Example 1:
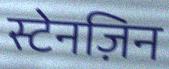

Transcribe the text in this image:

स्टेनज़िन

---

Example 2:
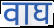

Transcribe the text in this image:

वाघ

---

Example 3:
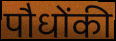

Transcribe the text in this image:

पौधोंकी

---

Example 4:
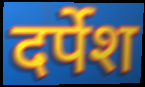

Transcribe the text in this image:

दर्पेश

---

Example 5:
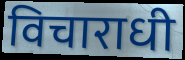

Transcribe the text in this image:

विचाराधी